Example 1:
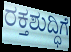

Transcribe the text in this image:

ರಕ್ತಶುದ್ಧಿಗೆ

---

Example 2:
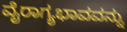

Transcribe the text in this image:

ವೈರಾಗ್ಯಭಾವವನ್ನು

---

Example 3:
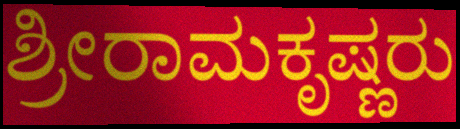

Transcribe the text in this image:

ಶ್ರೀರಾಮಕೃಷ್ಣರು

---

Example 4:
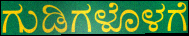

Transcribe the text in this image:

ಗುಡಿಗಳೊಳಗೆ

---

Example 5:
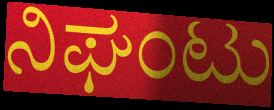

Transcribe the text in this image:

ನಿಘಂಟು